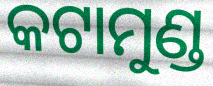
କଟାମୁଣ୍ଡ